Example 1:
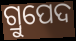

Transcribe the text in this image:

ଗ୍ରୁପେଦ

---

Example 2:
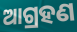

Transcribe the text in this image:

ଆଗ୍ରହଣ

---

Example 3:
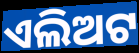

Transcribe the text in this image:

ଏଲିଅଟ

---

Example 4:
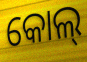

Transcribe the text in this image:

କୋଲ୍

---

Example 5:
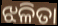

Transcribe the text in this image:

ଝଳିତା